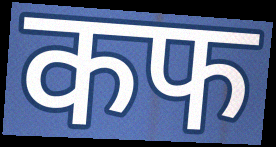
कफ